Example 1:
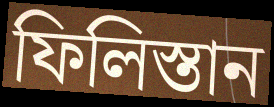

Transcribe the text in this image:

ফিলিস্তান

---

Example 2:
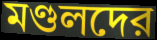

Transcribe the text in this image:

মণ্ডলদের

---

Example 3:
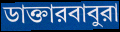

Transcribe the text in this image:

ডাক্তারবাবুরা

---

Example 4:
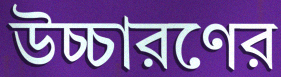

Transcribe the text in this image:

উচ্চারণের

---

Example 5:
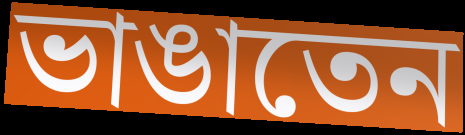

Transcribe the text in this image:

ভাঙাতেন